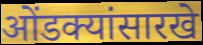
ओंडक्यांसारखे